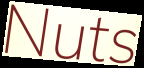
Nuts